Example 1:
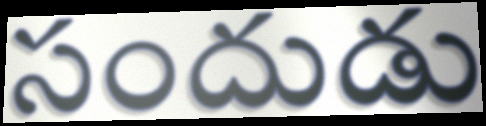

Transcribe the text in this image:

సందుడు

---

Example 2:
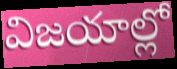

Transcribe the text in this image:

విజయాల్లో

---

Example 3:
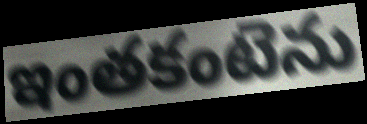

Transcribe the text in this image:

ఇంతకంటెను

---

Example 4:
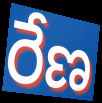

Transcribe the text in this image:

రేణ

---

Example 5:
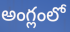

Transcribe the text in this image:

అంగ్లంలో